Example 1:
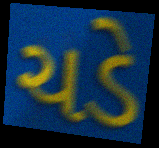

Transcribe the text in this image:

ચડે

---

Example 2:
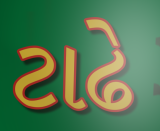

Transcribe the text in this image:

ટાઢે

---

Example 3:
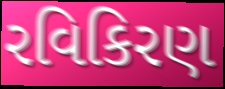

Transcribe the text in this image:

રવિકિરણ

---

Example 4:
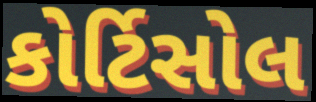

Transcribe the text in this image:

કોર્ટિસોલ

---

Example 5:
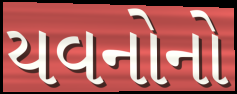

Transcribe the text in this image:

યવનોનો